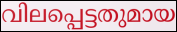
വിലപ്പെട്ടതുമായ